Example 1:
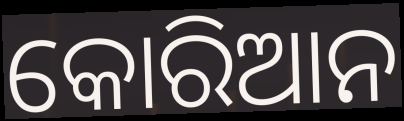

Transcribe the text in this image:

କୋରିଆନ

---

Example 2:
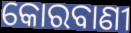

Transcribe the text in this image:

କୋରବାଣୀ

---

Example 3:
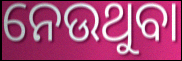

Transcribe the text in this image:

ନେଉଥୁବା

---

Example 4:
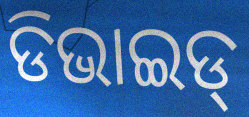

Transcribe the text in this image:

ଡିଭାଇଡ୍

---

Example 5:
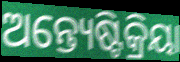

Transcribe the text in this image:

ଅନ୍ତ୍ୟେଷ୍ଟିକ୍ରିୟା